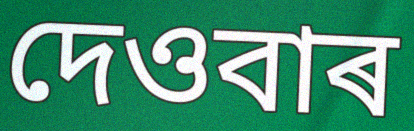
দেওবাৰ